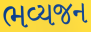
ભવ્યજન